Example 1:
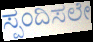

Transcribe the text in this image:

ಸ್ಪಂದಿಸಲೇ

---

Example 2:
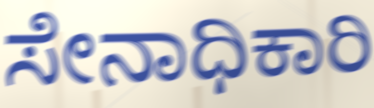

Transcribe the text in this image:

ಸೇನಾಧಿಕಾರಿ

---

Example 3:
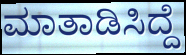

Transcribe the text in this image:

ಮಾತಾಡಿಸಿದ್ದೆ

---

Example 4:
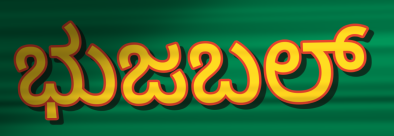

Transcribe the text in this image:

ಭುಜಬಲ್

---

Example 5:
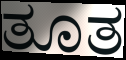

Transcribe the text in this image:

ತೂತ